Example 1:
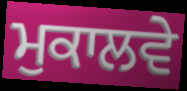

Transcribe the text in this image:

ਮੁਕਾਲਵੇ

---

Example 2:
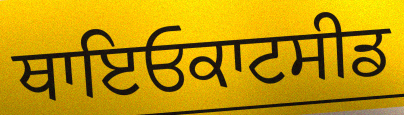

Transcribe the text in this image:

ਥਾਇਓਕਾਟਸੀਡ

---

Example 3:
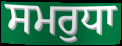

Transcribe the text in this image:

ਸਮਰੁਧਾ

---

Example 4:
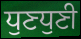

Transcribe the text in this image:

ਧੁਣਧੁਣੀ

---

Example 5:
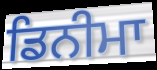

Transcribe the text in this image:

ਡਿਨੀਮਾ